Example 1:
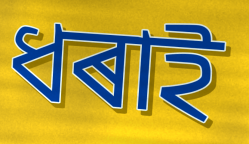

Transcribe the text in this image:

ধৰাই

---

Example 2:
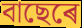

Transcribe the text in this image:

বাছেৰে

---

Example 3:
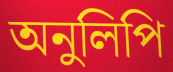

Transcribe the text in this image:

অনুলিপি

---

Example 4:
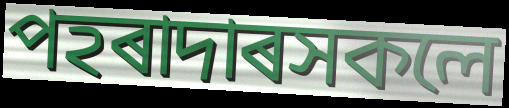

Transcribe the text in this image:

পহৰাদাৰসকলে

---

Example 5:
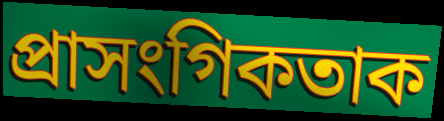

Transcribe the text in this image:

প্ৰাসংগিকতাক